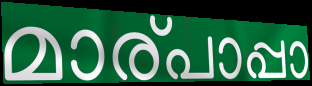
മാര്പാപ്പാ